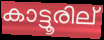
കാട്ടൂരില്